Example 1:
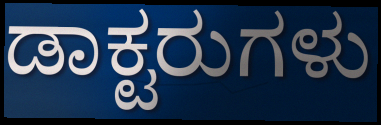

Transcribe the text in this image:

ಡಾಕ್ಟರುಗಳು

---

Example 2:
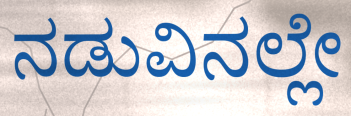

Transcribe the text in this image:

ನಡುವಿನಲ್ಲೇ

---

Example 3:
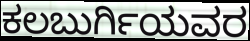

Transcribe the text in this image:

ಕಲಬುರ್ಗಿಯವರ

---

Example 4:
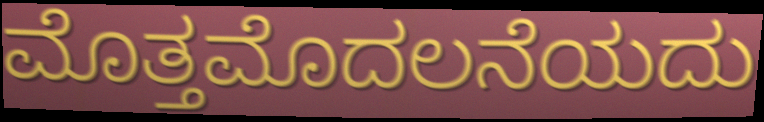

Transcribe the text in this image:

ಮೊತ್ತಮೊದಲನೆಯದು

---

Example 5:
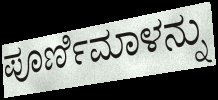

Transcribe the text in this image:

ಪೂರ್ಣಿಮಾಳನ್ನು